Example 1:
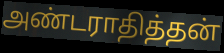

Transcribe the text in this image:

அண்டராதித்தன்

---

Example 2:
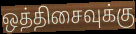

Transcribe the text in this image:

ஒத்திசைவுக்கு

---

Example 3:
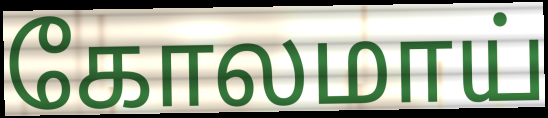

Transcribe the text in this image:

கோலமாய்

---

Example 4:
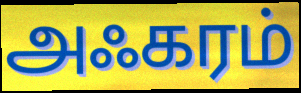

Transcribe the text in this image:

அஃகரம்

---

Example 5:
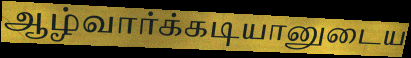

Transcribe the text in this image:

ஆழ்வார்க்கடியானுடைய